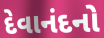
દેવાનંદનો